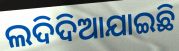
ଲଦିଦିଆଯାଇଛି